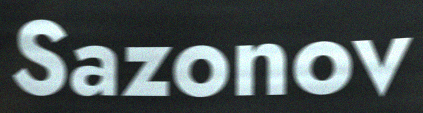
Sazonov